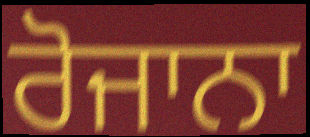
ਰੋਜਾਨਾ